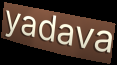
yadava